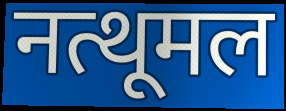
नत्थूमल